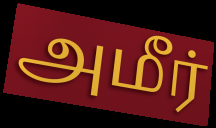
அமீர்